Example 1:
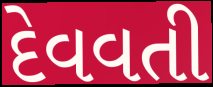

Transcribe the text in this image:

દેવવતી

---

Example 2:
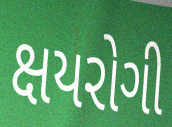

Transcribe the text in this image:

ક્ષયરોગી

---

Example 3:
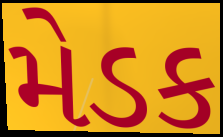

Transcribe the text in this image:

મેડક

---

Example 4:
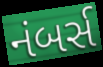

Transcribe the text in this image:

નંબર્સ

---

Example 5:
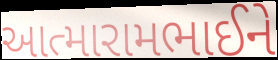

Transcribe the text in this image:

આત્મારામભાઈને